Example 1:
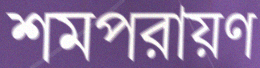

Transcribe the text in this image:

শমপরায়ণ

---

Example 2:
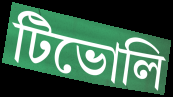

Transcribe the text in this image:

টিভোলি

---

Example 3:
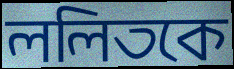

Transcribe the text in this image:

ললিতকে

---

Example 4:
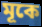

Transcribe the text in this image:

মূকে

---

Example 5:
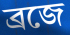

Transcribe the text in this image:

ব্রজে